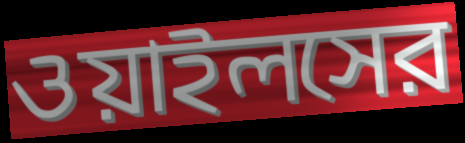
ওয়াইলসের